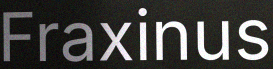
Fraxinus